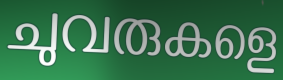
ചുവരുകളെ